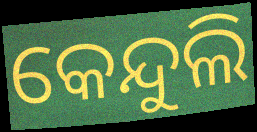
କେନ୍ଦୁଲି